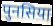
पुनसिया